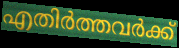
എതിർത്തവർക്ക്